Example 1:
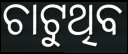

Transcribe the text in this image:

ଚାଟୁଥିବ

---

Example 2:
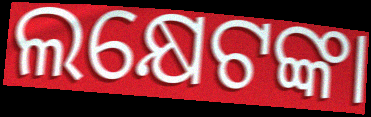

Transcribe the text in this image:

ଲକ୍ଷେଟଙ୍କା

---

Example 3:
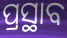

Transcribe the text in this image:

ପ୍ରସ୍ଥାବ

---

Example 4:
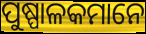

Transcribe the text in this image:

ପୁଷ୍ପାଳକମାନେ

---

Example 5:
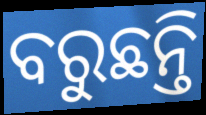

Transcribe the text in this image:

ବରୁଛନ୍ତି